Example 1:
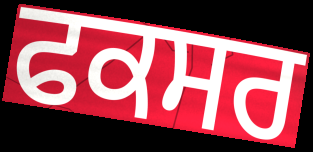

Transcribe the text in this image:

ਫਕਸਰ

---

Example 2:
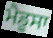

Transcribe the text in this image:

ਮੈਡੂਸਾ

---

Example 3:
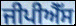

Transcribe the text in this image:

ਜੀਪੀਐੱਸ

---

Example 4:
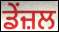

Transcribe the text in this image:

ਡੇਂਜ਼ਲ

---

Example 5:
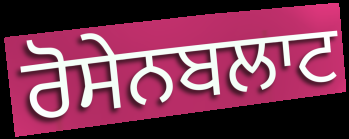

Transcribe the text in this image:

ਰੋਸੇਨਬਲਾਟ